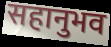
सहानुभव